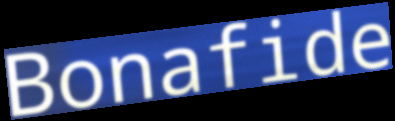
Bonafide